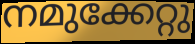
നമുക്കേറ്റു